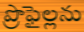
ప్రొఫైల్లను